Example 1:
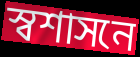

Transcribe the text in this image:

স্বশাসনে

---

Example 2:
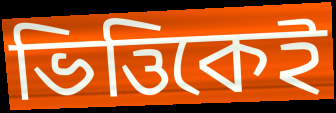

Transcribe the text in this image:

ভিত্তিকেই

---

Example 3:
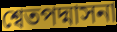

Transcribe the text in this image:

শ্বেতপদ্মাসনা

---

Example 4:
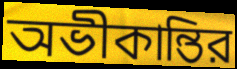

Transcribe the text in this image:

অভীকান্তির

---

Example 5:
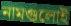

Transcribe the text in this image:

নামগুলোই